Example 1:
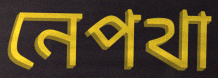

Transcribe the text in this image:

নেপথা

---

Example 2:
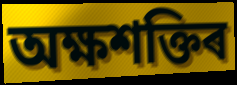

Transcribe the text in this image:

অক্ষশক্তিৰ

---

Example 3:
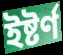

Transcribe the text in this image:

ইষ্টৰ্ণ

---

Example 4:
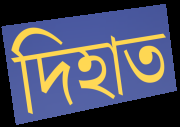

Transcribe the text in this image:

দিহাত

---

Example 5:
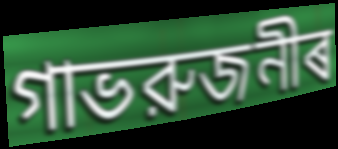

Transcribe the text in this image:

গাভৰুজনীৰ